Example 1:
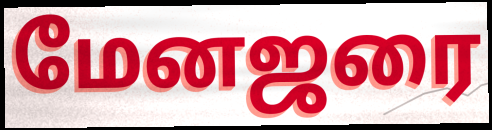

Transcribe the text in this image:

மேனஜரை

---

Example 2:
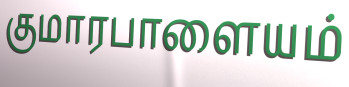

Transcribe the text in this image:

குமாரபாளையம்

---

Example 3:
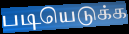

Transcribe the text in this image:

படியெடுக்க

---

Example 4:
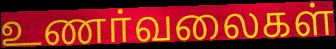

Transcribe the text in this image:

உணர்வலைகள்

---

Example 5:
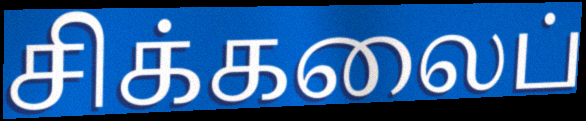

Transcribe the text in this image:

சிக்கலைப்